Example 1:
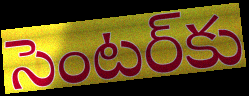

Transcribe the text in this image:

సెంటర్‌కు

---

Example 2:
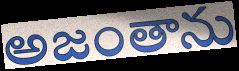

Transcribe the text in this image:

అజంతాను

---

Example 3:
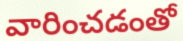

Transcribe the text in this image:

వారించడంతో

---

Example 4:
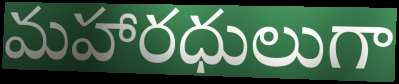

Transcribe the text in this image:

మహారధులుగా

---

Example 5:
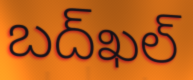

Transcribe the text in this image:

బద్‌ఖల్